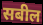
सबील